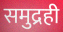
समुद्रही